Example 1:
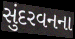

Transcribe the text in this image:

સુંદરવનના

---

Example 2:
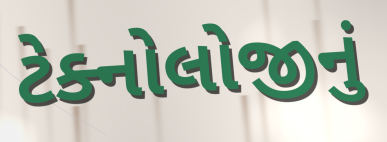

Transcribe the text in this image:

ટેક્નોલોજીનું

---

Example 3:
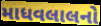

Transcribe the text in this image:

માધવલાલનો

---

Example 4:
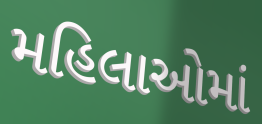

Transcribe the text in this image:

મહિલાઓમાં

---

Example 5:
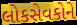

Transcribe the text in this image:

લોકસેવકોને